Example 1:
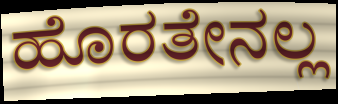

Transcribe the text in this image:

ಹೊರತೇನಲ್ಲ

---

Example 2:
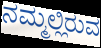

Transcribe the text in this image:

ನಮ್ಮಲ್ಲಿರುವ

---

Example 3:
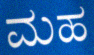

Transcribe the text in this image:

ಮಹ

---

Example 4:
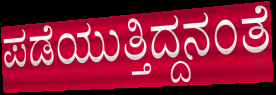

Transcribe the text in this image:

ಪಡೆಯುತ್ತಿದ್ದನಂತೆ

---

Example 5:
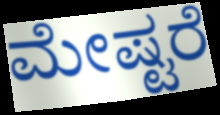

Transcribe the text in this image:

ಮೇಷ್ಟರೆ